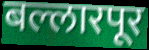
बल्लारपूर